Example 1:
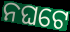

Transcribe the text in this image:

ନଘଟେ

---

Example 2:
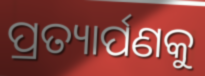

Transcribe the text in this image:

ପ୍ରତ୍ୟାର୍ପଣକୁ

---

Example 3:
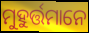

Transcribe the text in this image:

ମୁହୁର୍ତ୍ତମାନେ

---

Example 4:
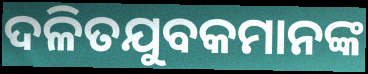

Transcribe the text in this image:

ଦଳିତଯୁବକମାନଙ୍କ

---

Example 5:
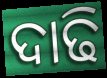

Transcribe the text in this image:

ଦାଢି